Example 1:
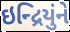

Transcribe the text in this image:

ઇન્દ્રિયુંને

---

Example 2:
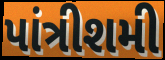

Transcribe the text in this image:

પાંત્રીશમી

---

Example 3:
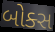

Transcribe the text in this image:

બોક્સ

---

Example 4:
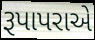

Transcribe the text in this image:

રૂપાપરાએ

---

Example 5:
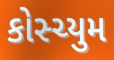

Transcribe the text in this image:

કોસ્ચ્યુમ